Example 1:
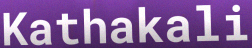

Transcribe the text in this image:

Kathakali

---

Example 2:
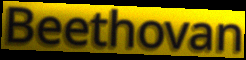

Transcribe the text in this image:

Beethovan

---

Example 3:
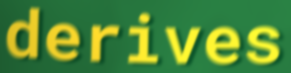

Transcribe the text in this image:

derives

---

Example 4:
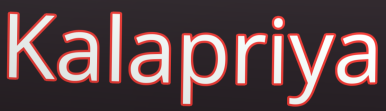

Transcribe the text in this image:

Kalapriya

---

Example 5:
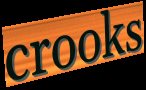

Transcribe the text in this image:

crooks